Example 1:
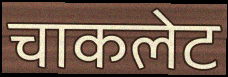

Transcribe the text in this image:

चाकलेट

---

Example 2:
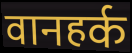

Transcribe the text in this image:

वानहर्क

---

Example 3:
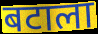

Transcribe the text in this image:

बटाला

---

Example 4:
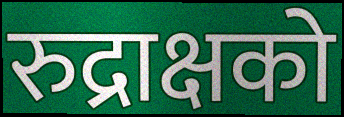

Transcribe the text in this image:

रुद्राक्षको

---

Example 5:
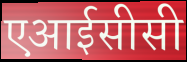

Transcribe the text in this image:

एआईसीसी